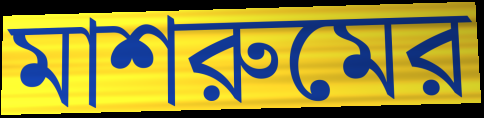
মাশরুমের